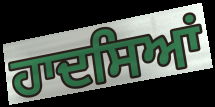
ਹਾਦਸਿਆਂ